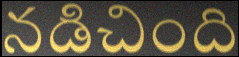
నడిచింది